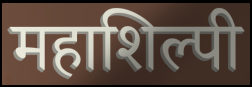
महाशिल्पी